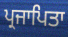
ਪ੍ਰਜਾਪਿਤਾ